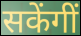
सकेंगीं